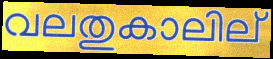
വലതുകാലില്